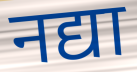
नद्या